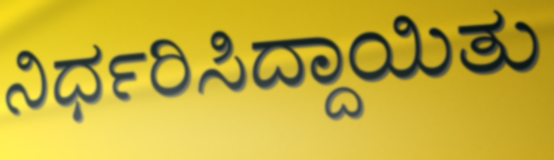
ನಿರ್ಧರಿಸಿದ್ದಾಯಿತು